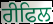
ਰੀਫਿਲ